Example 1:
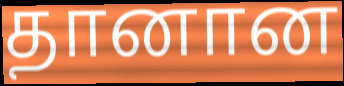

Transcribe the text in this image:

தானான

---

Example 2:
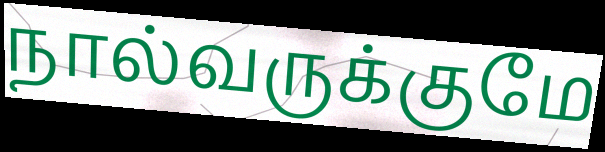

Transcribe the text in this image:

நால்வருக்குமே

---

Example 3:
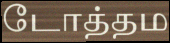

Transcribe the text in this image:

டோத்தம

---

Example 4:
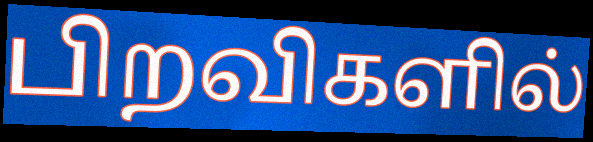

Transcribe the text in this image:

பிறவிகளில்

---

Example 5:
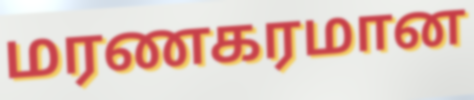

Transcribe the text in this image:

மரணகரமான